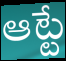
ఆట్టే